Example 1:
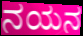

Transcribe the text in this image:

ನಯನ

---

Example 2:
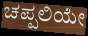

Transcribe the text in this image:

ಚಪ್ಪಲಿಯೇ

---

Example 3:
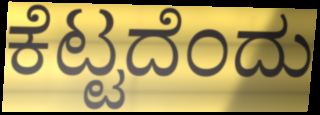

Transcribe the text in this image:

ಕೆಟ್ಟದೆಂದು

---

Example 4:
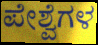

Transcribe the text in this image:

ಪೇಶ್ವೆಗಳ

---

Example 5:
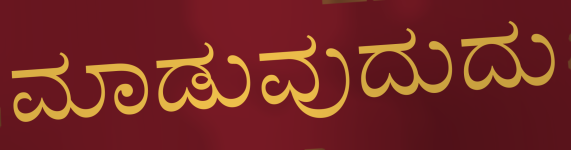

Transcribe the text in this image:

ಮಾಡುವುದುದು